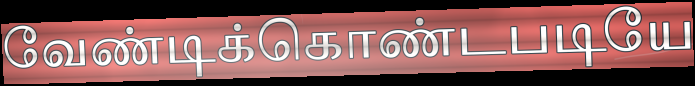
வேண்டிக்கொண்டபடியே